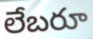
లేబరూ